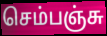
செம்பஞ்சு